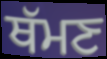
ਥੱਮਣ